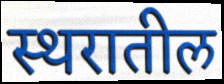
स्थरातील